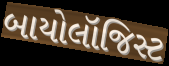
બાયોલૉજિસ્ટ